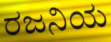
ರಜನಿಯ